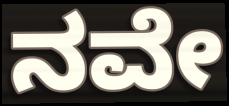
ನವೇ